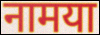
नामया